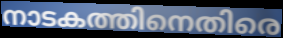
നാടകത്തിനെതിരെ